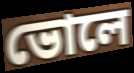
ভোলে